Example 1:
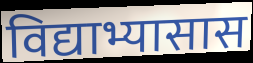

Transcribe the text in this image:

विद्याभ्यासास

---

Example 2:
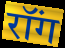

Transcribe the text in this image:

रॉंग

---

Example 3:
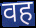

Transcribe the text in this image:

वह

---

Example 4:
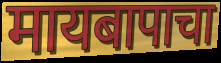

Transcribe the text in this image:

मायबापाचा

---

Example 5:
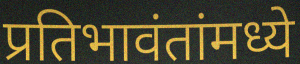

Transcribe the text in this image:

प्रतिभावंतांमध्ये